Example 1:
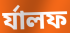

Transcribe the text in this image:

র্যালফ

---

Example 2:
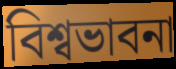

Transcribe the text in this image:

বিশ্বভাবনা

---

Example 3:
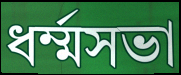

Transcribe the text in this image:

ধর্ম্মসভা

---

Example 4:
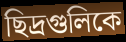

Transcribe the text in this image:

ছিদ্রগুলিকে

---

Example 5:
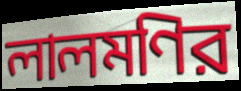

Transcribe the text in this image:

লালমণির